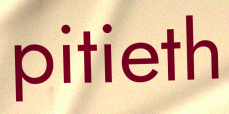
pitieth